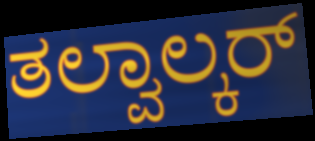
ತಲ್ವಾಲ್ಕರ್